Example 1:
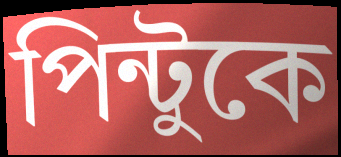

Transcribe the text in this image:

পিন্টুকে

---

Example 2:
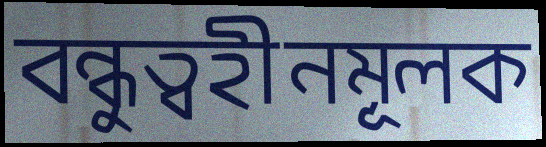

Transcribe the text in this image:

বন্ধুত্বহীনমূলক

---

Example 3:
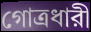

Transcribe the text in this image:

গোত্রধারী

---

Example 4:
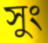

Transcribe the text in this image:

সুং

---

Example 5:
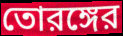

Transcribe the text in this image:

তোরঙ্গের